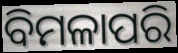
ବିମଳାପରି